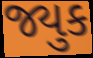
જ્યુક